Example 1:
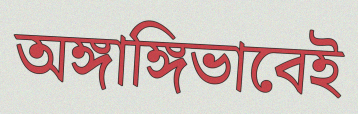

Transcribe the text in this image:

অঙ্গাঙ্গিভাবেই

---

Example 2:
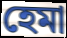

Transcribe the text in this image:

হেমা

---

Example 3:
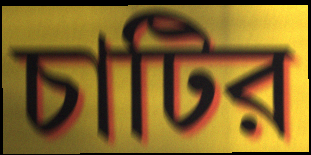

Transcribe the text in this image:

চাটির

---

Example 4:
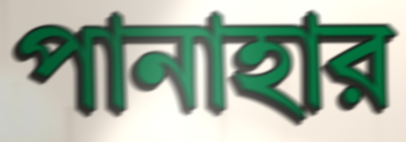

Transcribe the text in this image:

পানাহার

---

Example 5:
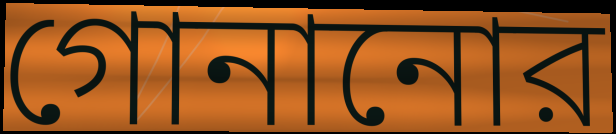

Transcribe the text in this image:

গোনানোর